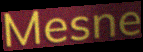
Mesne